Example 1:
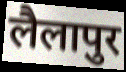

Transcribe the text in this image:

लैलापुर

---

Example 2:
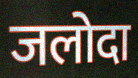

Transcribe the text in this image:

जलोदा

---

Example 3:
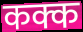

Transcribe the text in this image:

कक्क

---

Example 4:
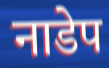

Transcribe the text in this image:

नाडेप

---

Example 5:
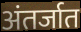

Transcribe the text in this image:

अंतर्जात